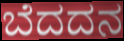
ಬೆದದನ